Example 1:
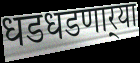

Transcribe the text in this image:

धडधडणार्या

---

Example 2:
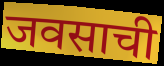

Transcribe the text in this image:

जवसाची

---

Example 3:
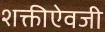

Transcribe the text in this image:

शक्तीऐवजी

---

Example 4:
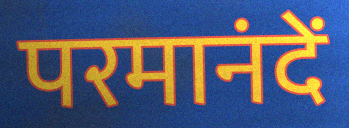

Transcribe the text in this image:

परमानंदें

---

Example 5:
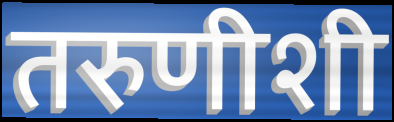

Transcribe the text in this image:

तरुणीशी